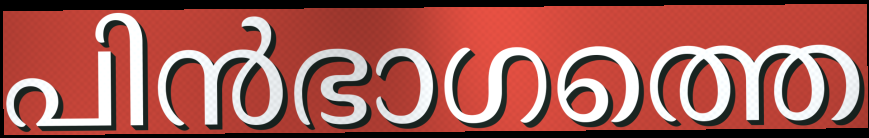
പിൻഭാഗത്തെ